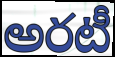
అరటీ